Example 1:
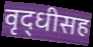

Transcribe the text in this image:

वृद्धीसह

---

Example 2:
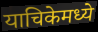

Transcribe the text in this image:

याचिकेमध्ये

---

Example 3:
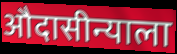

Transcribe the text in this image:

औदासीन्याला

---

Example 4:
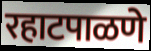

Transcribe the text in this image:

रहाटपाळणे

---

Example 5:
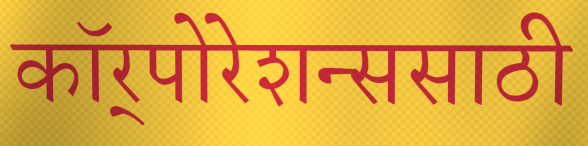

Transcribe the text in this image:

कॉर्पोरेशन्ससाठी